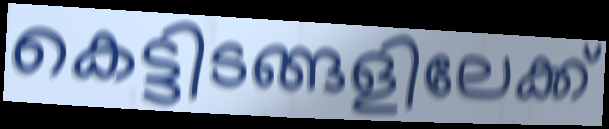
കെട്ടിടങ്ങളിലേക്ക്